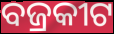
ବଜ୍ରକୀଟ